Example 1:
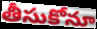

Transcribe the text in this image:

తీసుకోనూ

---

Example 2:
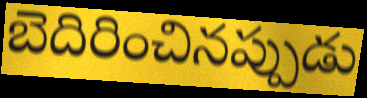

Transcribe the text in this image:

బెదిరించినప్పుడు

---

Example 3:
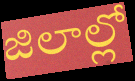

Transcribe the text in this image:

జిలాల్లో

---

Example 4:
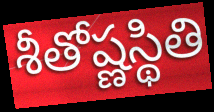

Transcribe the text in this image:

శీతోష్ణస్థితి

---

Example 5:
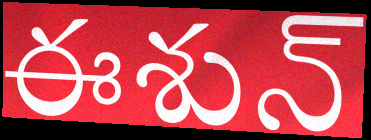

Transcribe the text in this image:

ఈశున్